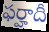
ఫర్హాదీ